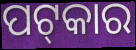
ପଟ୍‌କାର